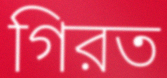
গিরত